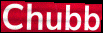
Chubb